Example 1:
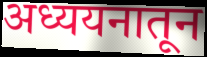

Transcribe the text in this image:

अध्ययनातून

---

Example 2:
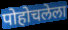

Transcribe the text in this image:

पोहोचलेला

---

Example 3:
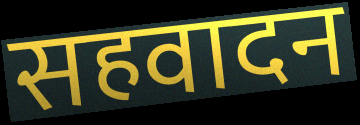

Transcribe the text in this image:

सहवादन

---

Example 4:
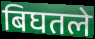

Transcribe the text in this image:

बिघतले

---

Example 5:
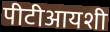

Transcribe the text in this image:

पीटीआयशी